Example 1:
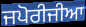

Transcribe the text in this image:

ਜਪੋਰੀਜੀਆ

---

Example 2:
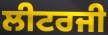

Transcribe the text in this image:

ਲੀਟਰਜੀ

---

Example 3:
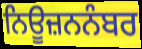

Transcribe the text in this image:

ਨਿਊਜ਼ਨਨੰਬਰ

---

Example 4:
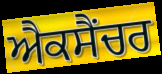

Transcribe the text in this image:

ਐਕਸੈਂਚਰ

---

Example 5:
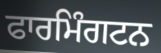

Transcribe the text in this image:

ਫਾਰਮਿੰਗਟਨ